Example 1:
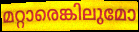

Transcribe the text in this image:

മറ്റാരെങ്കിലുമോ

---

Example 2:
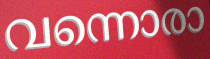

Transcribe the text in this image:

വന്നൊരാ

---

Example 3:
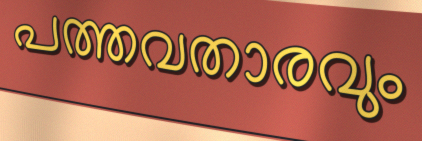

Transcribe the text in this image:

പത്തവതാരവും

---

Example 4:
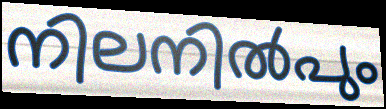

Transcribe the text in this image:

നിലനിൽപും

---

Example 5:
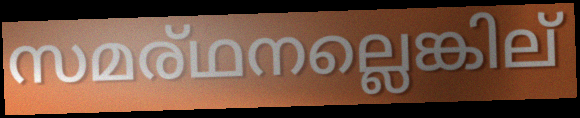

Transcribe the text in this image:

സമര്ഥനല്ലെങ്കില്